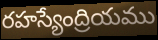
రహస్యేంద్రియము